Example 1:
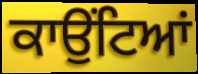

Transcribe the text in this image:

ਕਾਉਂਟਿਆਂ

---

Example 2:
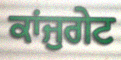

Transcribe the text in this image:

ਕਾਂਜੁਗੇਟ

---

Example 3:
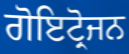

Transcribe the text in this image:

ਗੋਇਟ੍ਰੋਜਨ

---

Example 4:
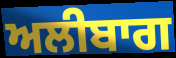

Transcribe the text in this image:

ਅਲੀਬਾਗ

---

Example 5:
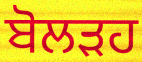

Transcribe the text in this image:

ਬੋਲੜਹ